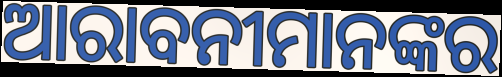
ଆରାବନୀମାନଙ୍କର